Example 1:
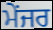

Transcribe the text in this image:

ਮੇਂਜਰ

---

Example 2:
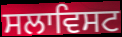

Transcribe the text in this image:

ਸਲਾਵਿਸਟ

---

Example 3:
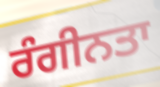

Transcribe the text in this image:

ਰੰਗੀਨਤਾ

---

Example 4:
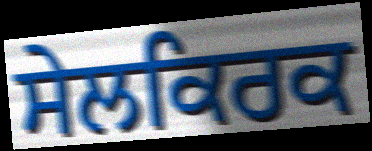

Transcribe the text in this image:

ਸੇਲਕਿਰਕ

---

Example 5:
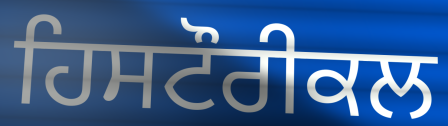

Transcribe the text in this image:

ਹਿਸਟੌਰੀਕਲ